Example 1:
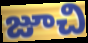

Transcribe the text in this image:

జూచి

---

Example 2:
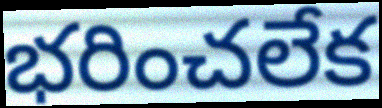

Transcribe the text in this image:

భరించలేక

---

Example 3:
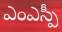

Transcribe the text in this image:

ఎంఎస్పీ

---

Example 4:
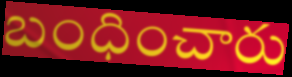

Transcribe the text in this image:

బంధించారు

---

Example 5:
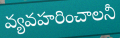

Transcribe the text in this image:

వ్యవహరించాలనీ